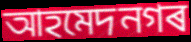
আহমেদনগৰ